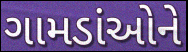
ગામડાંઓને